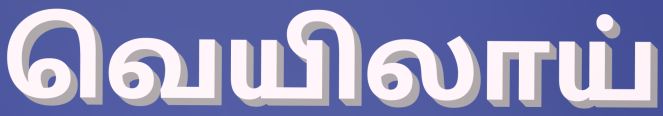
வெயிலாய்